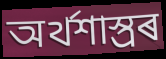
অৰ্থশাস্ত্ৰৰ